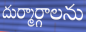
దుర్మార్గాలను